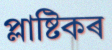
প্লাষ্টিকৰ